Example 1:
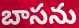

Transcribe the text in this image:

బాసను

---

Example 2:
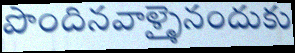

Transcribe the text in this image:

పొందినవాళ్ళైనందుకు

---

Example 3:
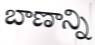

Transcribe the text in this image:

బాణాన్ని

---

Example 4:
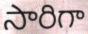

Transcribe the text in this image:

సారిగా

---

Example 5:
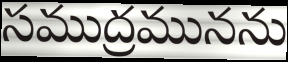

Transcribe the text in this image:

సముద్రమునను